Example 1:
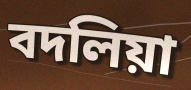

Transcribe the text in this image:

বদলিয়া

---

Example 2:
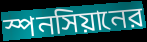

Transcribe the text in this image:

স্পনসিয়ানের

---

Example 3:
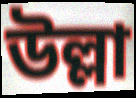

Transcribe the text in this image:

উল্লা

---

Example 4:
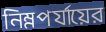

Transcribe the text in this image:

নিম্নপর্যায়ের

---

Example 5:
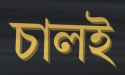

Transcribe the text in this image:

চালই